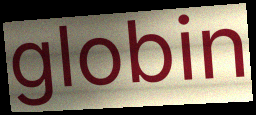
globin